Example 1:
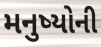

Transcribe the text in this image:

મનુષ્યોની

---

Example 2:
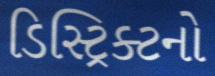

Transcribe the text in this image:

ડિસ્ટ્રિક્ટનો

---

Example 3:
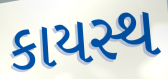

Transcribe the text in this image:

કાયસ્થ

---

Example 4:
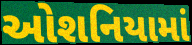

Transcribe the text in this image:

ઓશનિયામાં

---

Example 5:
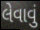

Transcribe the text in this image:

લેવાવું